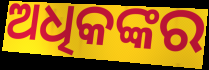
ଅଧିକଙ୍କର